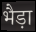
भैड़ा